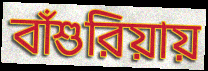
বাঁশুরিয়ায়